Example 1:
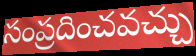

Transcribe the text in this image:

సంప్రదించవచ్చు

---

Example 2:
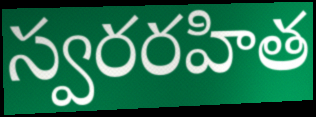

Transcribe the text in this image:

స్వరరహిత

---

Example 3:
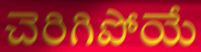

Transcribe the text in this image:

చెరిగిపోయే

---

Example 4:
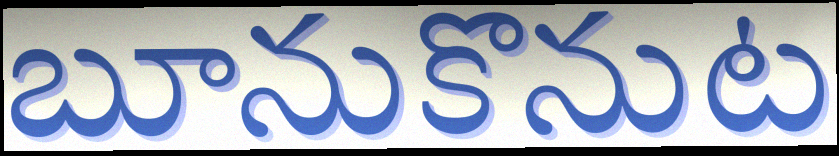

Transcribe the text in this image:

బూనుకొనుట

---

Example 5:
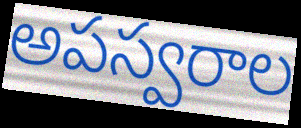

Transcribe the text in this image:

అపస్వరాల